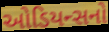
ઓડિયન્સનો